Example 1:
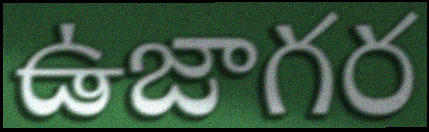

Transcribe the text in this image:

ఉజాగర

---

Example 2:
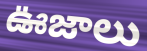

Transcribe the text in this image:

ఊజాలు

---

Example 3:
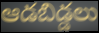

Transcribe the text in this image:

ఆడబిడ్డలు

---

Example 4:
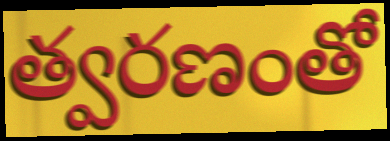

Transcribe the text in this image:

త్వరణంతో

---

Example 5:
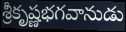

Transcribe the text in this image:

శ్రీకృష్ణభగవానుడు